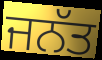
ਜਨੱਤ